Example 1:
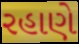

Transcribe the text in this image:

રહાણે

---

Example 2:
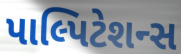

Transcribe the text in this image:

પાલ્પિટેશન્સ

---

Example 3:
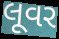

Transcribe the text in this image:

લૂવર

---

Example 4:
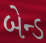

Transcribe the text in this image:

બેન્ડ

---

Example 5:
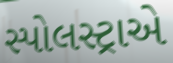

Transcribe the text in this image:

સ્પોલસ્ટ્રાએ